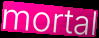
mortal